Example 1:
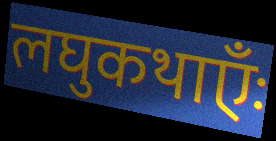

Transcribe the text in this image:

लघुकथाएँः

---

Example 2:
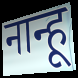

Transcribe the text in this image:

नान्हू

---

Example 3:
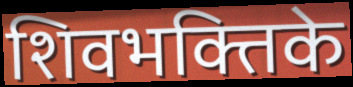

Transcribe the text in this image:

शिवभक्तिके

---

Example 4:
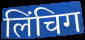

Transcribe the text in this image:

लिंचिग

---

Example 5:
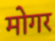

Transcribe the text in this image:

मोगर